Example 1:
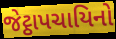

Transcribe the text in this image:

જેટ્ઠાપચાયિનો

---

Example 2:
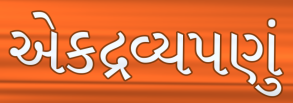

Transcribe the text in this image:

એકદ્રવ્યપણું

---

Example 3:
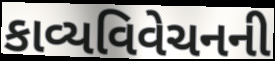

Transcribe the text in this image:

કાવ્યવિવેચનની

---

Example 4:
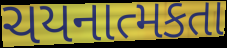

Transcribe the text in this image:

ચયનાત્મકતા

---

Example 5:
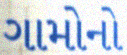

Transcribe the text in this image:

ગામોનો